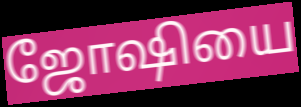
ஜோஷியை